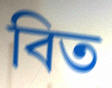
বিত